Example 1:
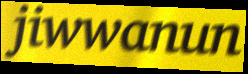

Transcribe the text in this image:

jiwwanun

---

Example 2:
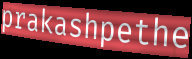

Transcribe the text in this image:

prakashpethe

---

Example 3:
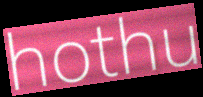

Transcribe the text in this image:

hothu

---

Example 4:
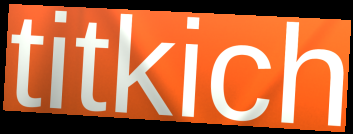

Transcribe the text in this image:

titkich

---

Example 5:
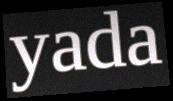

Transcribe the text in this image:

yada